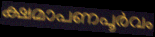
ക്ഷമാപണപൂർവം